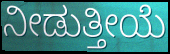
ನೀಡುತ್ತೀಯೆ